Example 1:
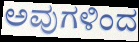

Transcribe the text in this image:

ಅವುಗಳಿಂದ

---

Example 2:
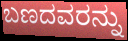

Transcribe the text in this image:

ಬಣದವರನ್ನು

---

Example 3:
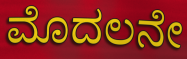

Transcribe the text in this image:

ಮೊದಲನೇ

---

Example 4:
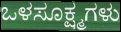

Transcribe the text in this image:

ಒಳಸೂಕ್ಷ್ಮಗಳು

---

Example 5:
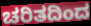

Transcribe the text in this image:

ಚರಿತದಿಂದ